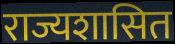
राज्यशासित